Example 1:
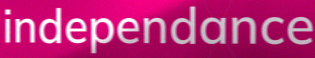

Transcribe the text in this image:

independance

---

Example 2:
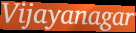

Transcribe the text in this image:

Vijayanagar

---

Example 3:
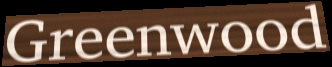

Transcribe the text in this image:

Greenwood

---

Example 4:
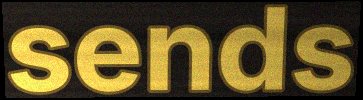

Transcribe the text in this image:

sends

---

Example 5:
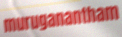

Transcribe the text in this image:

muruganantham